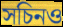
সচিনও